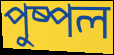
পুষ্পল